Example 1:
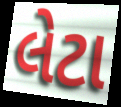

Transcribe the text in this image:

લેટા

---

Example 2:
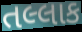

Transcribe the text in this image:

તલ્લાક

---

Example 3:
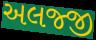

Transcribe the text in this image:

અલજ્જી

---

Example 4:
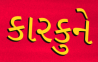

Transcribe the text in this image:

કારકુને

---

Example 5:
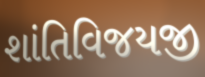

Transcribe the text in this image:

શાંતિવિજયજી